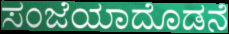
ಸಂಜೆಯಾದೊಡನೆ